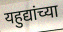
यहुद्यांच्या